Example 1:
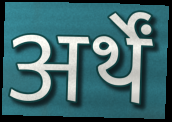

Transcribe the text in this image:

अर्थें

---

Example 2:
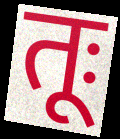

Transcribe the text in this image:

तूः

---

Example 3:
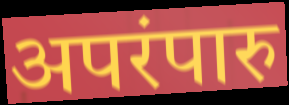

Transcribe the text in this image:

अपरंपारु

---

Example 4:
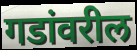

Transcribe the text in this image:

गडांवरील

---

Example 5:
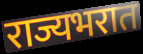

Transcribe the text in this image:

राज्यभरात